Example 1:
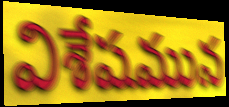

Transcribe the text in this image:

విశేషమున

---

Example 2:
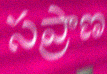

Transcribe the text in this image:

సప్రాణ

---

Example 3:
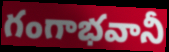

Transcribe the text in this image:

గంగాభవానీ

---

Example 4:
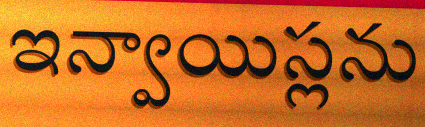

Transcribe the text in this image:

ఇన్వాయిస్లను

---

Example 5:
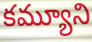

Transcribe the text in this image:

కమ్యూని